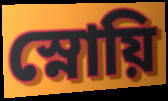
স্নোয়ি